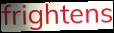
frightens